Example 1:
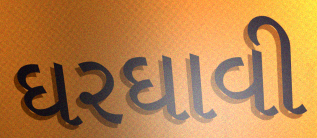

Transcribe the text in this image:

ઘરઘાવી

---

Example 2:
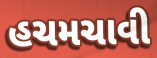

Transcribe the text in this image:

હચમચાવી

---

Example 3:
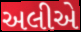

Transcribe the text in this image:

અલીએ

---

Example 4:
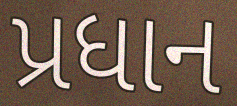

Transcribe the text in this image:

પ્રધાન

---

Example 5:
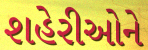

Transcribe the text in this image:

શહેરીઓને